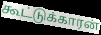
கூட்டுக்காரன்